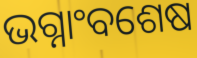
ଭଗ୍ନାଂବଶେଷ